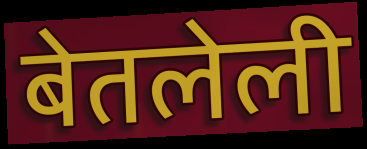
बेतलेली